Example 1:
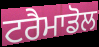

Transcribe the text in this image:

ਟਰੈਮਾਡੋਲ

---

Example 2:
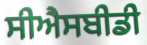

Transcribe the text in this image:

ਸੀਐਸਬੀਡੀ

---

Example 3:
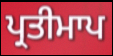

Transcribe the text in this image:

ਪ੍ਰਤੀਮਾਪ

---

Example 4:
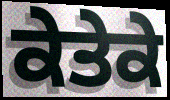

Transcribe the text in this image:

ਕੇਤੇਕੇ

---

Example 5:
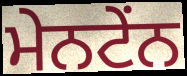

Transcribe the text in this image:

ਮੇਨਟੇਂਨ